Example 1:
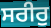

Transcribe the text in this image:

ਸਰੀਰੁ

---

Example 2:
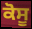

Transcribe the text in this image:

ਕੋਸੂ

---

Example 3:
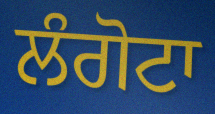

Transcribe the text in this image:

ਲੰਗੋਟਾ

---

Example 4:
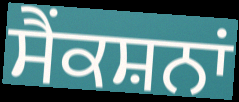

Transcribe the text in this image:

ਸੈਂਕਸ਼ਨਾਂ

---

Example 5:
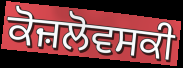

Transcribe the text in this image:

ਕੋਜ਼ਲੋਵਸਕੀ